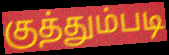
குத்தும்படி